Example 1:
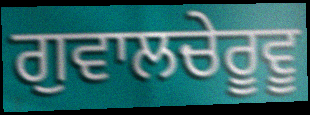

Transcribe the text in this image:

ਗੁਵਾਲਚੇਰੂਵੂ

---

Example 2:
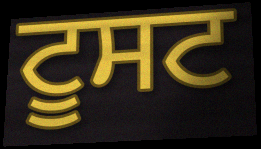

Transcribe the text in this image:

ਟੂਸਟ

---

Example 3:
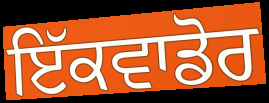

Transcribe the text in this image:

ਇੱਕਵਾਡੋਰ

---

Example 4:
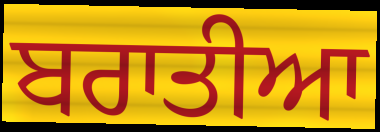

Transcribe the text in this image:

ਬਰਾਤੀਆ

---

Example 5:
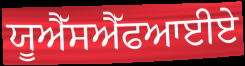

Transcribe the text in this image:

ਯੂਐੱਸਐੱਫਆਈਏ